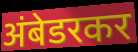
अंबेडरकर